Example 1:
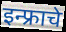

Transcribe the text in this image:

इन्फ्राचे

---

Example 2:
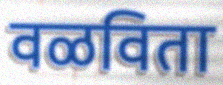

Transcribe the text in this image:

वळविता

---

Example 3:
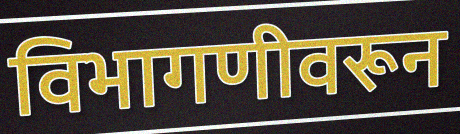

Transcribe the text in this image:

विभागणीवरून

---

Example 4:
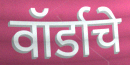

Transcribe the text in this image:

वॉर्डाचे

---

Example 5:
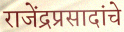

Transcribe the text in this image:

राजेंद्रप्रसादांचे